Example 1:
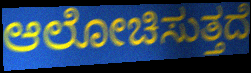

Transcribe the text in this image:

ಆಲೋಚಿಸುತ್ತದೆ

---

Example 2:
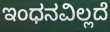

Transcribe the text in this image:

ಇಂಧನವಿಲ್ಲದೆ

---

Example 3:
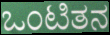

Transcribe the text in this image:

ಒಂಟಿತನ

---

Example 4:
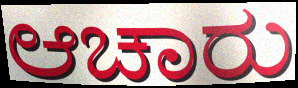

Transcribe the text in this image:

ಆಚಾರು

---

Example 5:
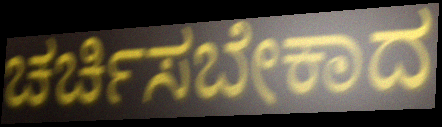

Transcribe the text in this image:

ಚರ್ಚಿಸಬೇಕಾದ